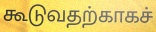
கூடுவதற்காகச்